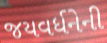
જયવર્ધનેની